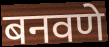
बनवणे